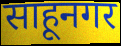
साहूनगर